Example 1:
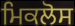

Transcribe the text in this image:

ਮਿਕਲੋਸ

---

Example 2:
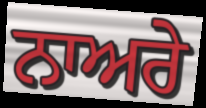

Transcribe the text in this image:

ਨਾਅਰੇ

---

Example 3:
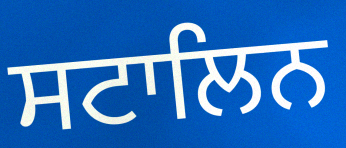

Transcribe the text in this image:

ਸਟਾਲਿਨ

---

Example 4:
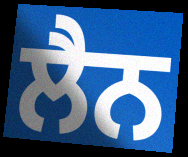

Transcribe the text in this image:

ਲੈਨ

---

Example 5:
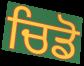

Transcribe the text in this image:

ਚਿਡੋ